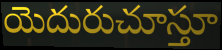
యెదురుచూస్తూ